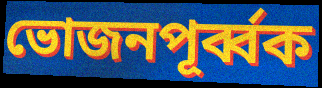
ভোজনপূর্ব্বক